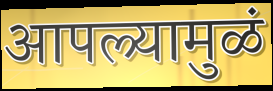
आपल्यामुळं